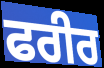
ਫਰੀਰ